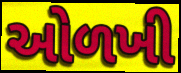
ઓળખી